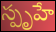
స్పృహే